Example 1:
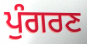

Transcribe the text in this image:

ਪੁੰਗਰਣ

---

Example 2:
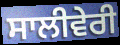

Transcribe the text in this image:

ਸਾਲੀਵੇਰੀ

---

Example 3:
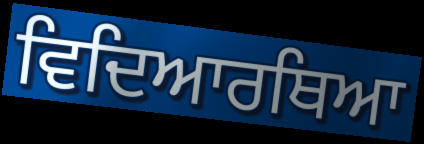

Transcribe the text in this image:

ਵਿਦਿਆਰਥਿਆ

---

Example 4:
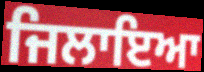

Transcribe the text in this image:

ਜਿਲਾਇਆ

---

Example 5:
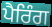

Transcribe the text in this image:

ਪੈਰਿੰਗ